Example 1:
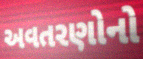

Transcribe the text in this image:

અવતરણોનો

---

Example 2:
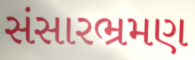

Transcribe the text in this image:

સંસારભ્રમણ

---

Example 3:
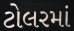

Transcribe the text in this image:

ટોલરમાં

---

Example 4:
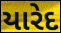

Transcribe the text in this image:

યારેદ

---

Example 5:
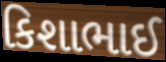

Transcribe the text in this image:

કિશાભાઈ